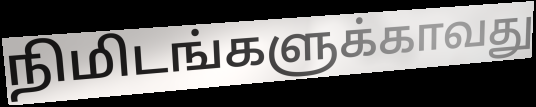
நிமிடங்களுக்காவது